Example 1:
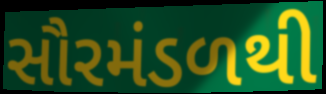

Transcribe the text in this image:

સૌરમંડળથી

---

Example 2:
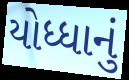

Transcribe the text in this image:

યોધ્ધાનું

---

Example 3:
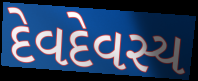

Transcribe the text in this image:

દેવદેવસ્ય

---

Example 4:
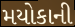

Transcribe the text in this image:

મયોકાની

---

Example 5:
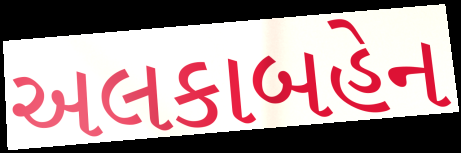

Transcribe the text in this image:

અલકાબહેન